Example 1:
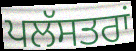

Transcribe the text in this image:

ਪਲੱਸਤਰਾਂ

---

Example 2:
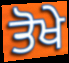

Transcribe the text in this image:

ਤੋਖੇ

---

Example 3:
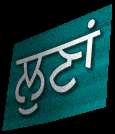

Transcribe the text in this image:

ਲੁਣਾਂ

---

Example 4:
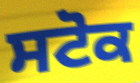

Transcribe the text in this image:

ਸਟੋਕ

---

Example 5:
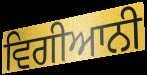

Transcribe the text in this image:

ਵਿਗੀਆਨੀ